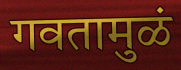
गवतामुळं